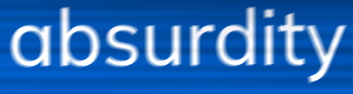
absurdity